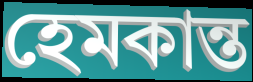
হেমকান্ত